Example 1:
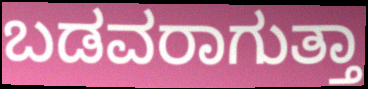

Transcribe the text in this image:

ಬಡವರಾಗುತ್ತಾ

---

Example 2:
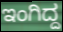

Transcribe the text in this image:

ಇಂಗಿದ್ದ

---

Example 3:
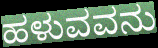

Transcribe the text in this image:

ಹಳುವವನು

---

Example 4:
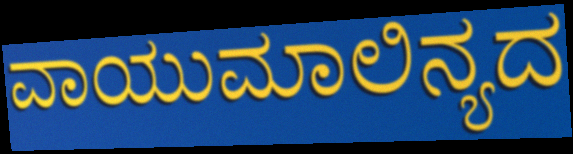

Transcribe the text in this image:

ವಾಯುಮಾಲಿನ್ಯದ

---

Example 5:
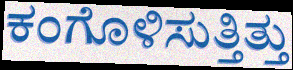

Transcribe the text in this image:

ಕಂಗೊಳಿಸುತ್ತಿತ್ತು